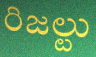
రిజల్టు